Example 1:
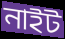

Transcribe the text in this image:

নাইট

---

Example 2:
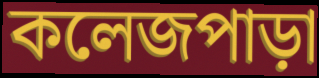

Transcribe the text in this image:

কলেজপাড়া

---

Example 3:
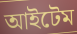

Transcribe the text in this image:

আইটেম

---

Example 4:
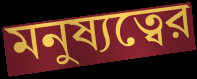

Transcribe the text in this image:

মনুষ্যত্বের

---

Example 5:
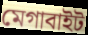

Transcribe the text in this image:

মেগাবাইট